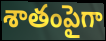
శాతంపైగా